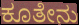
ಕೂತೇನು